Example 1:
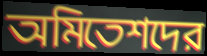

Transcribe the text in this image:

অমিতেশদের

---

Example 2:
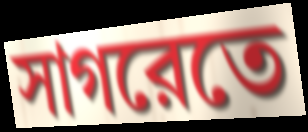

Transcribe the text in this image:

সাগরেতে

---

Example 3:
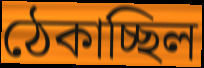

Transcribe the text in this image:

ঠেকাচ্ছিল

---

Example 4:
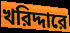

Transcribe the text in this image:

খরিদ্দারে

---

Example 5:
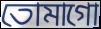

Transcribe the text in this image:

তোমাগো